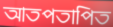
আতপতাপিত